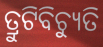
ତ୍ରୁଟିବିଚ୍ୟୁତି